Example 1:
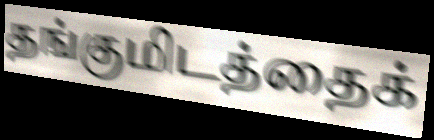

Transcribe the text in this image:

தங்குமிடத்தைக்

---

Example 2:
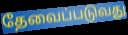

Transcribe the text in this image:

தேவைப்படுவது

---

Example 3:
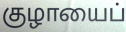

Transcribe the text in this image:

குழாயைப்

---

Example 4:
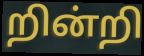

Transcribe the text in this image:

றின்றி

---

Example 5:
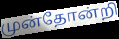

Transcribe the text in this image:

முன்தோன்றி